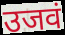
उजवं